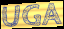
UGA